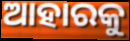
ଆହାରକୁ